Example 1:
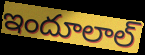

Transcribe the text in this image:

ఇందూలాల్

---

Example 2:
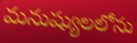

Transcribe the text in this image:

మనుష్యులలోను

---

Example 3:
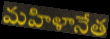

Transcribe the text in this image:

మహిళానేత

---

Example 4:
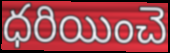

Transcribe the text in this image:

ధరియించె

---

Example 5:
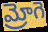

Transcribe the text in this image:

మ్రోగె